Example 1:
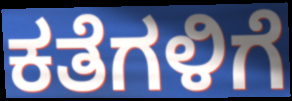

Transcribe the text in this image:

ಕತೆಗಳಿಗೆ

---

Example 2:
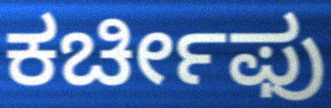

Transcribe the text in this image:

ಕರ್ಚೀಫು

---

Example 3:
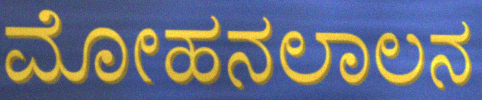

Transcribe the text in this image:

ಮೋಹನಲಾಲನ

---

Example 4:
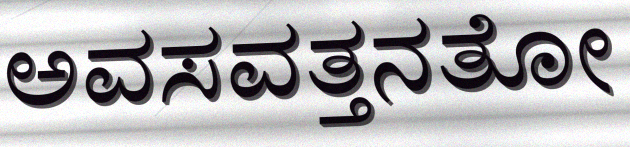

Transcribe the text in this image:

ಅವಸವತ್ತನತೋ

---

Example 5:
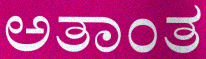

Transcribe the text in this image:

ಅತಾಂತ